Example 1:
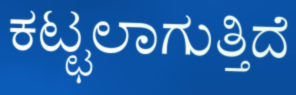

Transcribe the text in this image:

ಕಟ್ಟಲಾಗುತ್ತಿದೆ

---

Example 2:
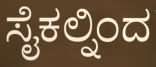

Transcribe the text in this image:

ಸೈಕಲ್ನಿಂದ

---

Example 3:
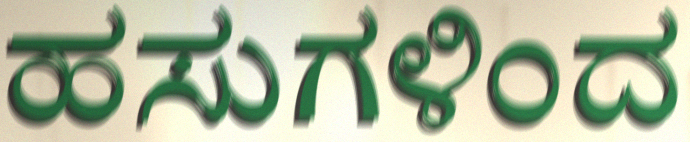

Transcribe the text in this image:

ಹಸುಗಳಿಂದ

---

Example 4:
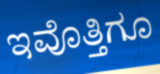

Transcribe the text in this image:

ಇವೊತ್ತಿಗೂ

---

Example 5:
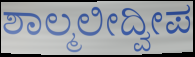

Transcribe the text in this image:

ಶಾಲ್ಮಲೀದ್ವೀಪ